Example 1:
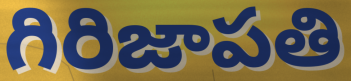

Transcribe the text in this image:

గిరిజాపతి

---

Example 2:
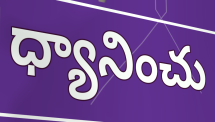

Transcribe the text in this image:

ధ్యానించు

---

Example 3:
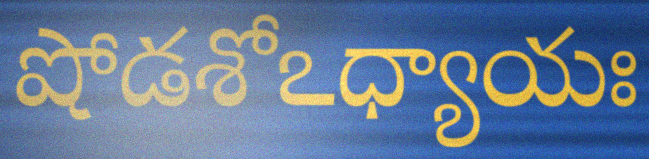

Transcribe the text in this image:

షోడశోఽధ్యాయః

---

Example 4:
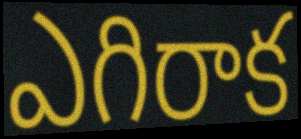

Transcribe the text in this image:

ఎగిరాక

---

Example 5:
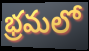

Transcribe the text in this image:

భ్రమలో